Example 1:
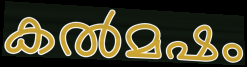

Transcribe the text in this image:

കൽമഷം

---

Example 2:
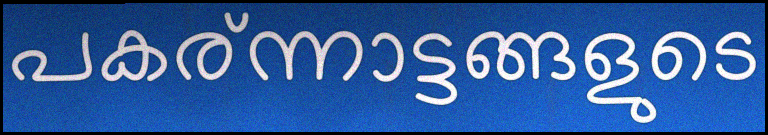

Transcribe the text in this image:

പകര്ന്നാട്ടങ്ങളുടെ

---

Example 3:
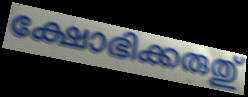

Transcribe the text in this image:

ക്ഷോഭിക്കരുതു്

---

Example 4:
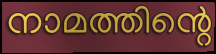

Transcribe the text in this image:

നാമത്തിന്റെ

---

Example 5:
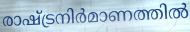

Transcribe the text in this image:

രാഷ്ട്രനിർമാണത്തിൽ